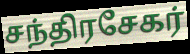
சந்திரசேகர்